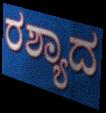
ರಶ್ಯಾದ